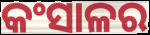
କଂସାଳର